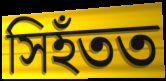
সিহঁতত